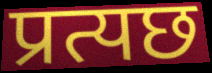
प्रत्यछ